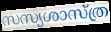
സസ്യശാസ്ത്ര